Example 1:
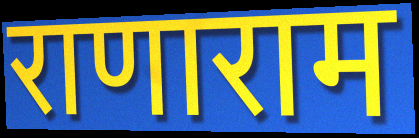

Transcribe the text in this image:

राणाराम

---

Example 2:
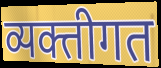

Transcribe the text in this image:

व्यक्तीगत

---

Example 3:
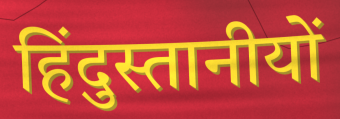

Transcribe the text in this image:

हिंदुस्तानीयों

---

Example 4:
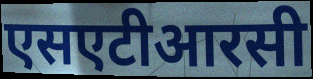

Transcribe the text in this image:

एसएटीआरसी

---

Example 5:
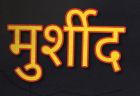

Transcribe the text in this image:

मुर्शीद